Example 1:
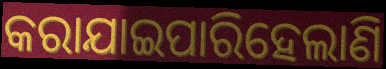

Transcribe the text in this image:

କରାଯାଇପାରିହେଲାଣି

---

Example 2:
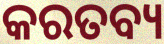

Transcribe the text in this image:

କରତବ୍ୟ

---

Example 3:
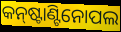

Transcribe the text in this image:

କନ୍‌ଷ୍ଟାଣ୍ଟିନୋପଲ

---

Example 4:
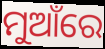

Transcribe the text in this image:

ମୁଆଁରେ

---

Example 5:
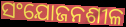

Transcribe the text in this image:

ସଂଯୋଜନଶୀଳ